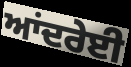
ਆਂਦਰੇਈ